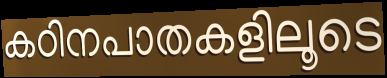
കഠിനപാതകളിലൂടെ